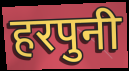
हरपुनी